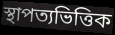
স্থাপত্যভিত্তিক